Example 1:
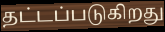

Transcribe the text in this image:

தட்டப்படுகிறது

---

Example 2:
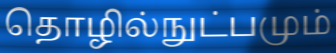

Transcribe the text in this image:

தொழில்நுட்பமும்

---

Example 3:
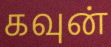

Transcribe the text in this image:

கவுன்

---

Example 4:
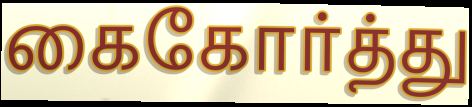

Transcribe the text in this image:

கைகோர்த்து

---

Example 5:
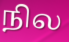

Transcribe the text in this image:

நில